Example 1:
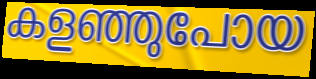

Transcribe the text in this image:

കളഞ്ഞുപോയ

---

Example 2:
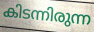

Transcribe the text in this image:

കിടന്നിരുന്ന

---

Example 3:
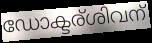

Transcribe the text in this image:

ഡോക്ടര്ശിവന്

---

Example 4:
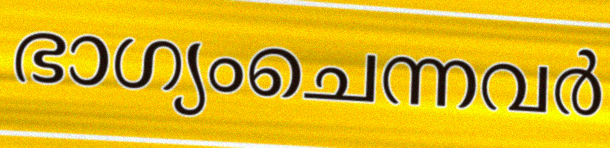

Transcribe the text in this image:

ഭാഗ്യംചെന്നവർ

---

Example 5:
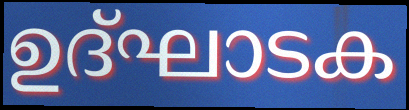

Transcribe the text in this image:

ഉദ്ഘാടക